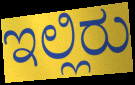
ಇಲ್ಲಿರು